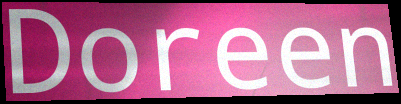
Doreen